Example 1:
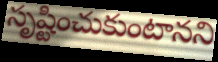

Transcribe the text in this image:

సృష్టించుకుంటానని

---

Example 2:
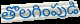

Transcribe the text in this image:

తొలగింపుడి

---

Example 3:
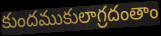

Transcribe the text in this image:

కుందముకులాగ్రదంతాం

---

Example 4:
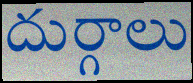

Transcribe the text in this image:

దుర్గాలు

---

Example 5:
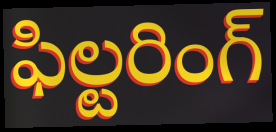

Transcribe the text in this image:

ఫిల్టరింగ్